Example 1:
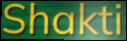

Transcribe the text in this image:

Shakti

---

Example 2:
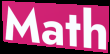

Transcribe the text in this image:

Math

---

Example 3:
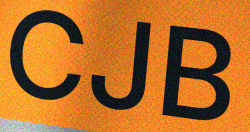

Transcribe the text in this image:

CJB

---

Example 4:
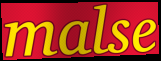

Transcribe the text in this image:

malse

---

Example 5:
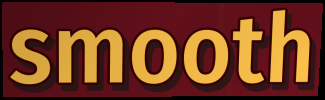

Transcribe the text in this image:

smooth